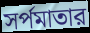
সর্পমাতার